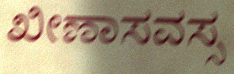
ಖೀಣಾಸವಸ್ಸ